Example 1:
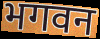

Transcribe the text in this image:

भगवन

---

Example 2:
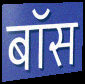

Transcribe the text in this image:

बॉस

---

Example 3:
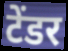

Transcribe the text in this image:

टेंडर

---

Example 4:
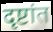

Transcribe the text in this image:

दृष्टांत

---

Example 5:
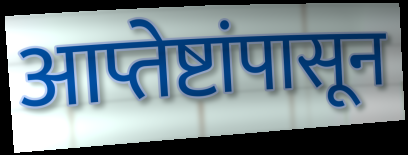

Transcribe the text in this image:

आप्तेष्टांपासून